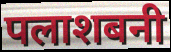
पलाशबनी